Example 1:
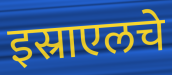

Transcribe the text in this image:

इस्राएलचे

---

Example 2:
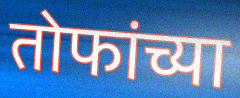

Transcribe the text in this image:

तोफांच्या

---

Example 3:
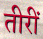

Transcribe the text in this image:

तीरीं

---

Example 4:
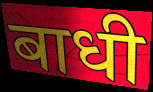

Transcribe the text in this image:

बाधी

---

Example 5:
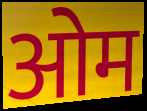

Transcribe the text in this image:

ओम